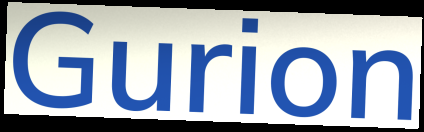
Gurion